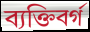
ব্যক্তিবর্গ